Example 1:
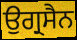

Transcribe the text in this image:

ਉਗ੍ਰਸੈਨ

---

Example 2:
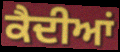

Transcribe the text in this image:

ਕੈਦੀਆਂ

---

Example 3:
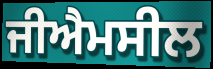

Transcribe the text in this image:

ਜੀਐਮਸੀਲ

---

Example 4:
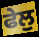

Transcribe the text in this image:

ਫੇਲੁ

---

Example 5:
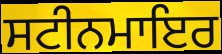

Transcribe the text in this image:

ਸਟੀਨਮਾਇਰ